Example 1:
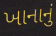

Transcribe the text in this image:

ખાનાનું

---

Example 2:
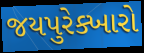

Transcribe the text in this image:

જયપુરેક્ખારો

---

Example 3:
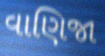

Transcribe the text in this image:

વાણિજા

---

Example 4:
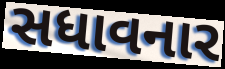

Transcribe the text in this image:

સધાવનાર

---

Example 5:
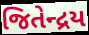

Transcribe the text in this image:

જિતેન્દ્રય